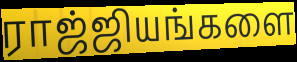
ராஜ்ஜியங்களை